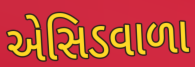
એસિડવાળા